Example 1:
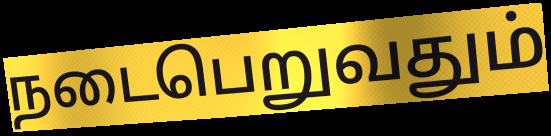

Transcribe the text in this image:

நடைபெறுவதும்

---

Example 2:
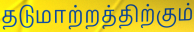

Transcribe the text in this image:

தடுமாற்றத்திற்கும்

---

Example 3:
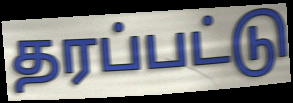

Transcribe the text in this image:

தரப்பட்டு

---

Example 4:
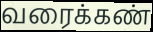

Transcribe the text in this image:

வரைக்கண்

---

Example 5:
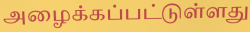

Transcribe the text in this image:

அழைக்கப்பட்டுள்ளது